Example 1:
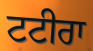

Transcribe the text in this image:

ਟਟੀਰਾ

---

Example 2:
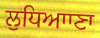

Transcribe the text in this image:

ਲੁਧਿਆਾਣਾ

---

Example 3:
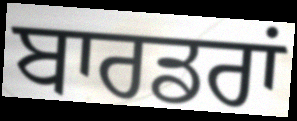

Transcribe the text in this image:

ਬਾਰਡਰਾਂ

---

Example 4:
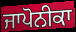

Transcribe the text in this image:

ਜਾਪੋਨੀਕਾ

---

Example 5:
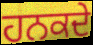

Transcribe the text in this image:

ਹਨਕਦੇ